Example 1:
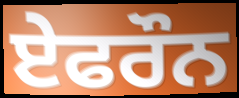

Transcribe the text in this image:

ਏਫਰੌਨ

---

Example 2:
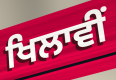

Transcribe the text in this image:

ਖਿਲਾਵੀਂ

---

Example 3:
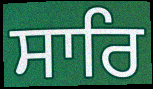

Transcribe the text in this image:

ਸਾਰਿ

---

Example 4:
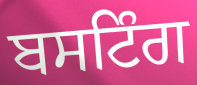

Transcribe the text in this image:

ਬਸਟਿੰਗ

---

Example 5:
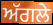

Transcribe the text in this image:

ਅੱਗਲੇ